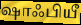
ஷாஃபியீ